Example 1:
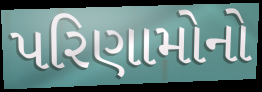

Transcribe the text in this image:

પરિણામોનો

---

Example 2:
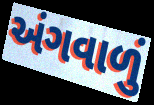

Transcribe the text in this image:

અંગવાળું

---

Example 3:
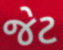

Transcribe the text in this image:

જેટ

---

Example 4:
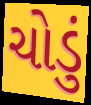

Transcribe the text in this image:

ચોડું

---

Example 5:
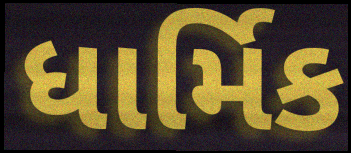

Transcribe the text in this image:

ધાર્મિક